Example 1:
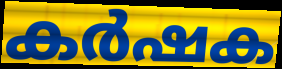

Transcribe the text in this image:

കർഷക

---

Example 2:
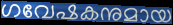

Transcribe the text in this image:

ഗവേഷകനുമായ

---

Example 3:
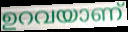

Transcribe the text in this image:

ഉറവയാണ്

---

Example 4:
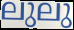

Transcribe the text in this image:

ലുലു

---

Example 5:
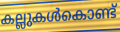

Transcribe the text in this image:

കല്ലുകൾകൊണ്ട്